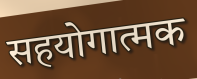
सहयोगात्मक